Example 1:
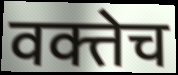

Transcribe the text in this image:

वक्तेच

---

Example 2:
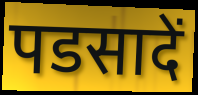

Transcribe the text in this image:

पडसादें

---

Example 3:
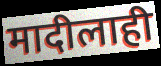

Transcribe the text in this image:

मादीलाही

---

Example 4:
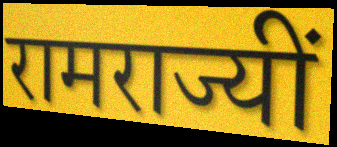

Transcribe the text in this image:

रामराज्यीं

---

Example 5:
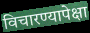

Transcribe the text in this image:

विचारण्यापेक्षा